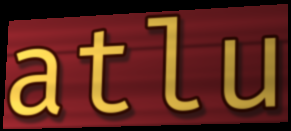
atlu